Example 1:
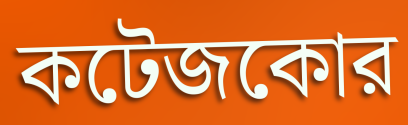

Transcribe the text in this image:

কটেজকোর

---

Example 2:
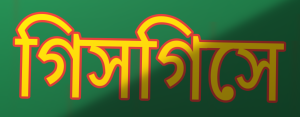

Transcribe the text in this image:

গিসগিসে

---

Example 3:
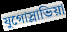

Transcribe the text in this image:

যুগোস্লাভিয়া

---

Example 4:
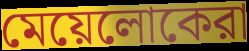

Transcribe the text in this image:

মেয়েলোকেরা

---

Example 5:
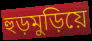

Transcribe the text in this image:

হুড়মুড়িয়ে